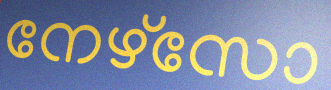
നേഴ്സോ